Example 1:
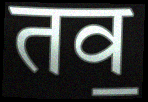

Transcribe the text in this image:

तव॒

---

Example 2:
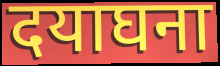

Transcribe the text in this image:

दयाघना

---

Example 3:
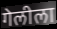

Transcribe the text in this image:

गेलीला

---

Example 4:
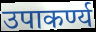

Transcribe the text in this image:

उपाकर्ण्य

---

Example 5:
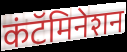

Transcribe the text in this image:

कंटॅमिनेशन